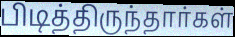
பிடித்திருந்தார்கள்